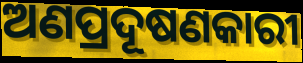
ଅଣପ୍ରଦୂଷଣକାରୀ